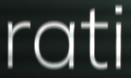
rati